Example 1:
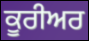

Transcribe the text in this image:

ਕੂਰੀਅਰ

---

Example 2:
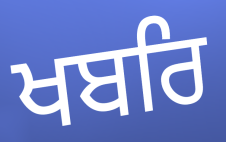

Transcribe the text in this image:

ਖਬਰਿ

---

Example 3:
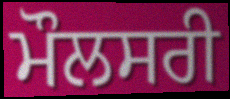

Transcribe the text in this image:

ਮੌਲਸਰੀ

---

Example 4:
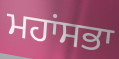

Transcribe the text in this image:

ਮਹਾਂਸਭਾ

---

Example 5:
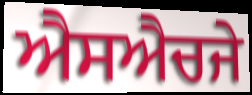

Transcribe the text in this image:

ਐਸਐਚਜੇ